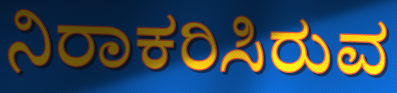
ನಿರಾಕರಿಸಿರುವ